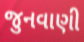
જુનવાણી